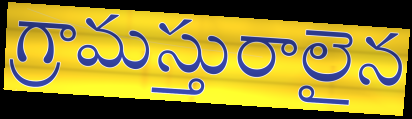
గ్రామస్తురాలైన